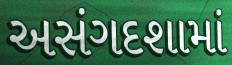
અસંગદશામાં